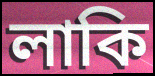
লাকি